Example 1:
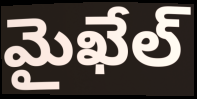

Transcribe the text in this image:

మైఖేల్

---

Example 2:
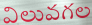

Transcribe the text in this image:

విలువగల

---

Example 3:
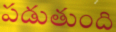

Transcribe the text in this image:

పడుతుంది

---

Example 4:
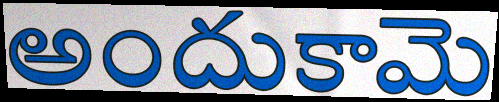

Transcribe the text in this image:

అందుకామె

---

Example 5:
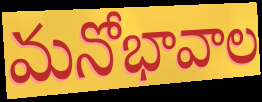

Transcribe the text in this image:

మనోభావాల